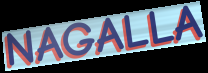
NAGALLA